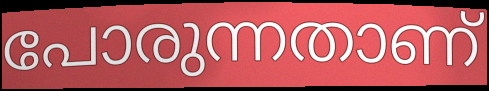
പോരുന്നതാണ്